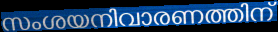
സംശയനിവാരണത്തിന്